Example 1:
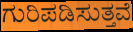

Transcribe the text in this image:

ಗುರಿಪಡಿಸುತ್ತವೆ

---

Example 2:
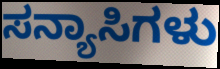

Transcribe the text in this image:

ಸನ್ಯಾಸಿಗಳು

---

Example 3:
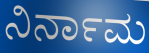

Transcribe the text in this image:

ನಿರ್ನಾಮ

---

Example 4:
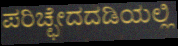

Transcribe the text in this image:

ಪರಿಚ್ಛೇದದಡಿಯಲ್ಲಿ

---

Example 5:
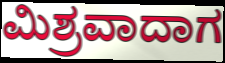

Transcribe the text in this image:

ಮಿಶ್ರವಾದಾಗ